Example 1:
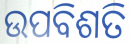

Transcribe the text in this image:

ଉପବିଶତି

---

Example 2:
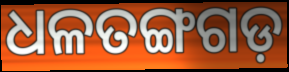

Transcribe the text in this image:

ଧଳତଙ୍ଗଗଡ଼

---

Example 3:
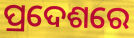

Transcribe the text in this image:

ପ୍ରଦେଶରେ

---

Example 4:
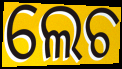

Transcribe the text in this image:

ଲେଚ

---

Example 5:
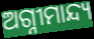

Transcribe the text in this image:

ଅଗ୍ନୀମାନ୍ଦ୍ୟ